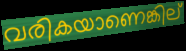
വരികയാണെങ്കില്